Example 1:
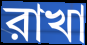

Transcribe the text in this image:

রাখা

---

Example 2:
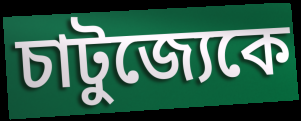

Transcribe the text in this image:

চাটুজ্যেকে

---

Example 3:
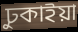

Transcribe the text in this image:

ঢুকাইয়া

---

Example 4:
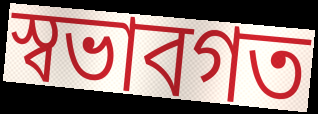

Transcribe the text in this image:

স্বভাবগত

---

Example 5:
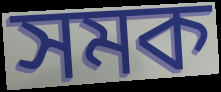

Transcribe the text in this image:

সমক